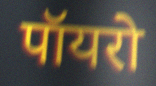
पॉयरो